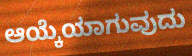
ಆಯ್ಕೆಯಾಗುವುದು